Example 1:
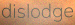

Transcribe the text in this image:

dislodge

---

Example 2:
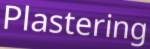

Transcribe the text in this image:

Plastering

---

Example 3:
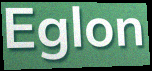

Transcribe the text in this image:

Eglon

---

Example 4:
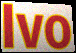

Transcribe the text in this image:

Ivo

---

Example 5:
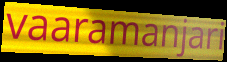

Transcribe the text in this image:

vaaramanjari